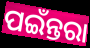
ପଇଁନ୍ତରା